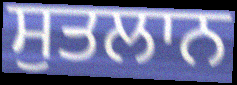
ਸੁਤਲਾਨ